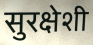
सुरक्षेशी